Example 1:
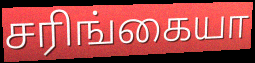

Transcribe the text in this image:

சரிங்கையா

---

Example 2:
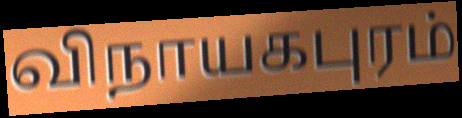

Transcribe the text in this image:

விநாயகபுரம்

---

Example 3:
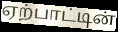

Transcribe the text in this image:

ஏற்பாட்டின்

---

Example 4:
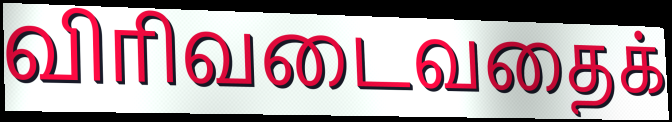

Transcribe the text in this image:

விரிவடைவதைக்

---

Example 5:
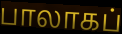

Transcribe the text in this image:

பாலாகப்